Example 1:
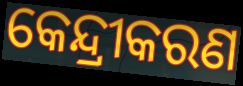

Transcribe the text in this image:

କେନ୍ଦ୍ରୀକରଣ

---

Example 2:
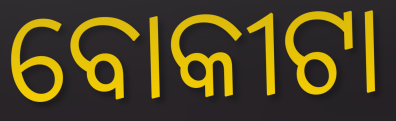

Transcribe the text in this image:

ବୋକୀଟା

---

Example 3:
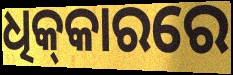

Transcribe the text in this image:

ଧିକ୍‌କାରରେ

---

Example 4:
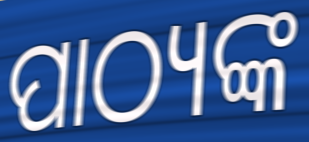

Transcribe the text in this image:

ପାଠ୍ୟଙ୍କ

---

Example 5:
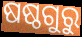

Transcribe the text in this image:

ଷଷ୍ଠଗୁରୁ